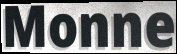
Monne